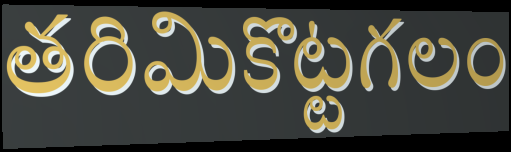
తరిమికొట్టగలం